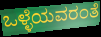
ಒಳ್ಳೆಯವರಂತೆ